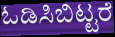
ಓಡಿಸಿಬಿಟ್ಟರೆ